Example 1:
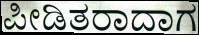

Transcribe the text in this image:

ಪೀಡಿತರಾದಾಗ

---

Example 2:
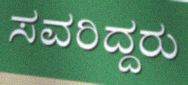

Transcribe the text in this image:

ಸವರಿದ್ದರು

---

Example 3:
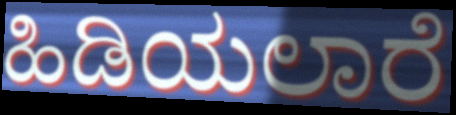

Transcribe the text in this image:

ಹಿಡಿಯಲಾರೆ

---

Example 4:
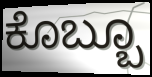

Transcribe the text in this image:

ಕೊಬ್ಬೂ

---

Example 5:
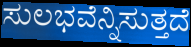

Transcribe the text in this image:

ಸುಲಭವೆನ್ನಿಸುತ್ತದೆ